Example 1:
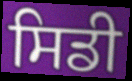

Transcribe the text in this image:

ਸਿਡੀ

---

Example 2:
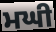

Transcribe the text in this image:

ਮਘੀ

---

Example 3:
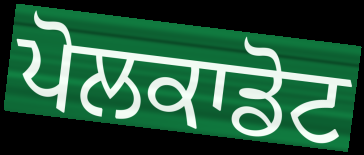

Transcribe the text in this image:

ਪੋਲਕਾਡੋਟ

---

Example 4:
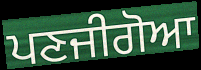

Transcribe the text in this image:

ਪਣਜੀਗੋਆ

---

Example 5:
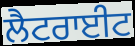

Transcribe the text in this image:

ਲੈਟਰਾਈਟ